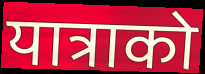
यात्राको